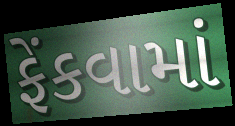
ફેંકવામાં